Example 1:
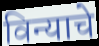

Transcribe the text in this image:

विन्याचे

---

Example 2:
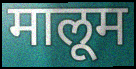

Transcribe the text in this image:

मालूम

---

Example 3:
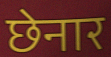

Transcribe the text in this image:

छेनार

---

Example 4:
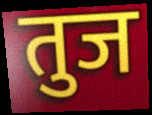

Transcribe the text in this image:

तुज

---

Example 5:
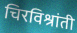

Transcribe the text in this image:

चिरविश्रांती